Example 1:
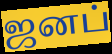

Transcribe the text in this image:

ஜனப்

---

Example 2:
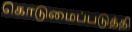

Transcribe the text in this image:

கொடுமைப்படுத்தி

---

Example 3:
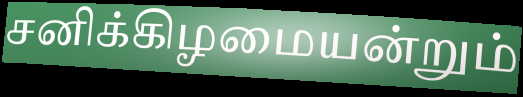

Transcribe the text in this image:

சனிக்கிழமையன்றும்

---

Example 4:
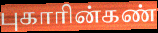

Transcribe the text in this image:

புகாரின்கண்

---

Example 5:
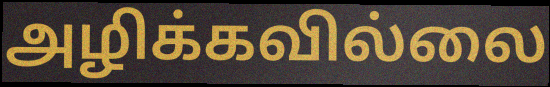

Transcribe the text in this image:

அழிக்கவில்லை